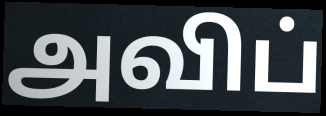
அவிப்